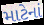
માટેનાં